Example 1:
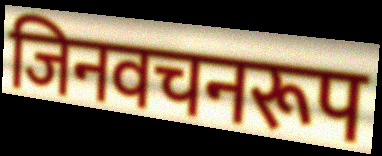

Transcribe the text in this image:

जिनवचनरूप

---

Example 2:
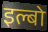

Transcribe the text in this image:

इल्बो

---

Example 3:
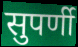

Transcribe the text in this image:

सुपर्णी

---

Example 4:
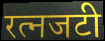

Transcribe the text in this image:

रत्नजटी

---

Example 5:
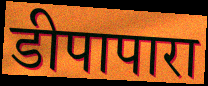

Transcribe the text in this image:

डीपापारा